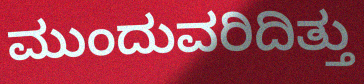
ಮುಂದುವರಿದಿತ್ತು